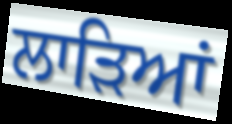
ਲਾੜਿਆਂ